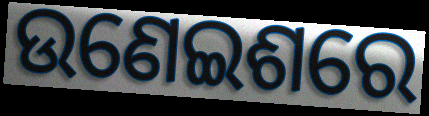
ଉଣେଇଶରେ